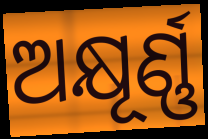
ଅକ୍ଷୂର୍ଣ୍ଣ